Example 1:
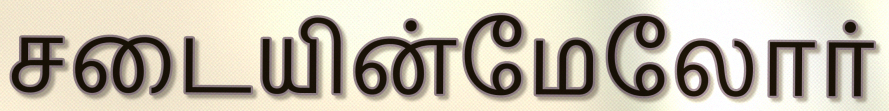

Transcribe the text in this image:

சடையின்மேலோர்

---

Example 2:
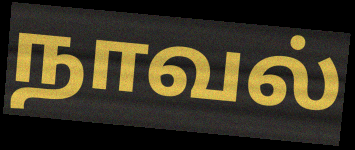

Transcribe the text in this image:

நாவல்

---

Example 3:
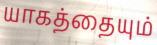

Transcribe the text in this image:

யாகத்தையும்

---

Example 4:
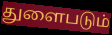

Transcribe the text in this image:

துளைபடும்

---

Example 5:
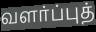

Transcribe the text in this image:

வளர்ப்புத்